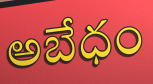
అబేధం